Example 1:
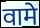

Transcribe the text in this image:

वामे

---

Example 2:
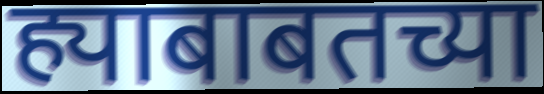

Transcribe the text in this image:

ह्याबाबतच्या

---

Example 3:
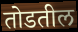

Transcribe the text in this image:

तोडतील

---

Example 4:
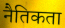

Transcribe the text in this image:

नैतिकता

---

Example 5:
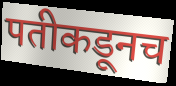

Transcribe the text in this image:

पतीकडूनच